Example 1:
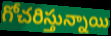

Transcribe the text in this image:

గోచరిస్తున్నాయి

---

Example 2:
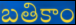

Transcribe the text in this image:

బతికాం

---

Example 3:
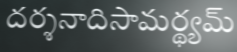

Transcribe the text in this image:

దర్శనాదిసామర్థ్యమ్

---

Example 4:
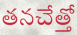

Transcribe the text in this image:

తనచేత్తో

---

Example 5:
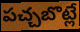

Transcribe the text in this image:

పచ్చబొట్లే